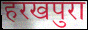
हरखपुरा